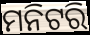
ମନିଟରି